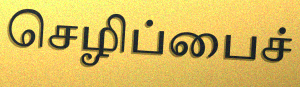
செழிப்பைச்